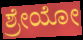
ಶ್ರೇಯೋ